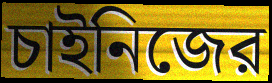
চাইনিজের